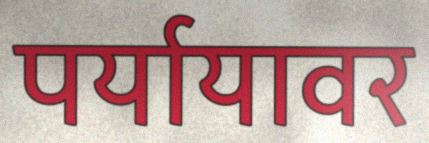
पर्यायावर